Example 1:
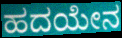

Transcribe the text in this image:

ಹದಯೇನ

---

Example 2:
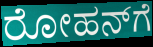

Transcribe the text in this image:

ರೋಹನ್‌ಗೆ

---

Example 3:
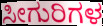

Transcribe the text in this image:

ಸೀಗುರಿಗಳ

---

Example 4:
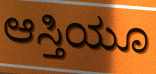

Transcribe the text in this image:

ಆಸ್ತಿಯೂ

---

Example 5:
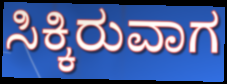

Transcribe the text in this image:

ಸಿಕ್ಕಿರುವಾಗ